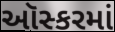
ઑસ્કરમાં